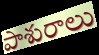
పాశురాలు